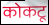
कोकटू